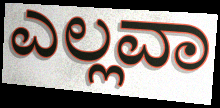
ಎಲ್ಲವಾ